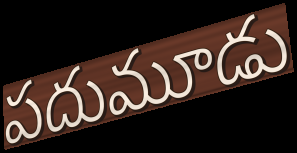
పదుమూడు